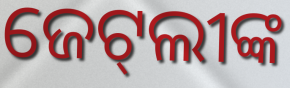
ଜେଟ୍‌ଲୀଙ୍କ